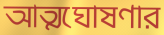
আত্মঘোষণার